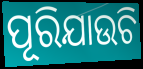
ପୂରିଯାଉଚି